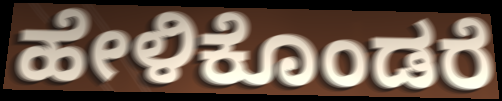
ಹೇಳಿಕೊಂಡರೆ